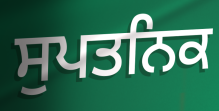
ਸੁਪਤਨਿਕ